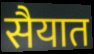
सैयात